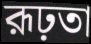
রূঢ়তা